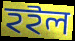
হইল